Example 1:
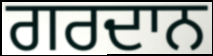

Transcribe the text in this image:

ਗਰਦਾਨ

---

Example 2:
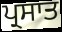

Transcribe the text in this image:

ਪ੍ਰਸਾਤ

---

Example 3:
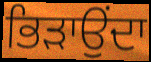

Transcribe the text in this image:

ਭਿੜਾਉਂਦਾ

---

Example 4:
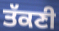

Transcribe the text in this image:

ਤੱਕਣੀ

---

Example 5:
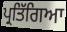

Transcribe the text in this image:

ਪ੍ਰਤਿੱਗਿਆ